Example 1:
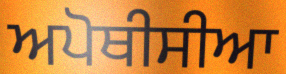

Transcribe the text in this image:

ਅਪੋਥੀਸੀਆ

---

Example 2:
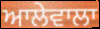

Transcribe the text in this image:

ਆਲੇਵਾਲਾ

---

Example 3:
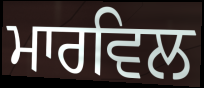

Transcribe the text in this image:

ਮਾਰਵਿਲ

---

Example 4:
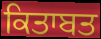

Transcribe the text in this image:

ਕਿਤਾਬਤ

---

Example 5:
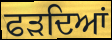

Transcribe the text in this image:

ਫੜਦਿਆਂ